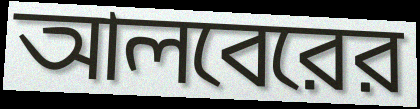
আলবেরের